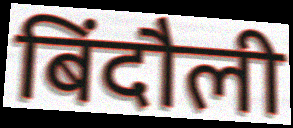
बिंदौली